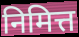
निमित्त